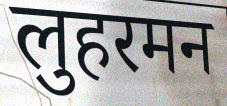
लुहरमन